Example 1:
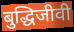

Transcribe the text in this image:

बुद्धिजीवी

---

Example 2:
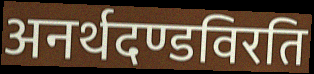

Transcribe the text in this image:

अनर्थदण्डविरति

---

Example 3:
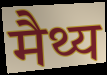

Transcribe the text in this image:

मैथ्य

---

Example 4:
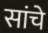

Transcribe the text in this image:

सांचे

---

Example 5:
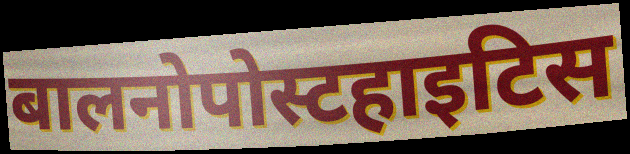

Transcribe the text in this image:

बालनोपोस्टहाइटिस